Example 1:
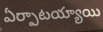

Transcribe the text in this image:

ఏర్పాటయ్యాయి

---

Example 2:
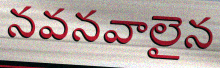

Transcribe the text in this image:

నవనవాలైన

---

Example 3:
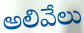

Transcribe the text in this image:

అలివేలు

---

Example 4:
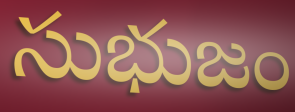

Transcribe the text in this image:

సుభుజం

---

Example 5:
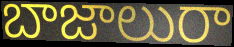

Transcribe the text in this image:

బాజాలురా